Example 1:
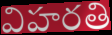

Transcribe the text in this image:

విహరతి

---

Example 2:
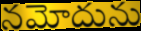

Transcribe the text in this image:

నమోదును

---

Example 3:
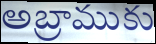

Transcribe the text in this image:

అబ్రాముకు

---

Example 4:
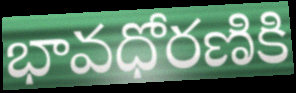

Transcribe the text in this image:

భావధోరణికి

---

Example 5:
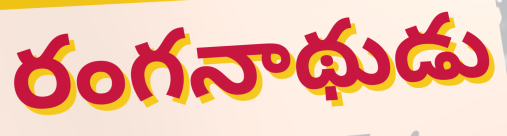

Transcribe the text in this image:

రంగనాథుడు